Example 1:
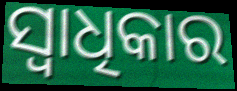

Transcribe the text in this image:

ସ୍ବାଧିକାର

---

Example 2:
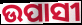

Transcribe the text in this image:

ଉପାସୀ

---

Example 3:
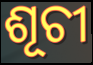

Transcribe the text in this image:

ଶୂଚୀ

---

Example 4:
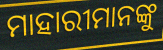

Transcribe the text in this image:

ମାହାରୀମାନଙ୍କୁ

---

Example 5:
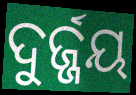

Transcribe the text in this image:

ଦୁର୍ଜ୍ଜୟ